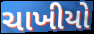
ચાખીયો